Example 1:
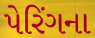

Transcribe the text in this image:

પેરિંગના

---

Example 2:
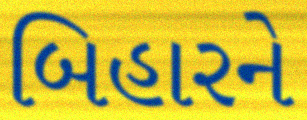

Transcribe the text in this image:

બિહારને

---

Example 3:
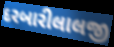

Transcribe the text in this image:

દરબારીલાલજી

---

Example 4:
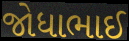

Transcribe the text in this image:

જોધાભાઈ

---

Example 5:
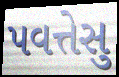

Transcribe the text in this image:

પવત્તેસુ